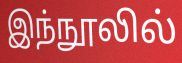
இந்நூலில்